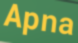
Apna